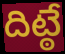
దిట్ఠే